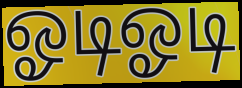
ஓடிஓடி